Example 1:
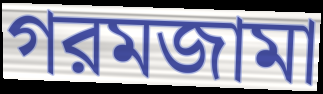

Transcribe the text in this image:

গরমজামা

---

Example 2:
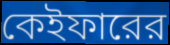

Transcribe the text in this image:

কেইফারের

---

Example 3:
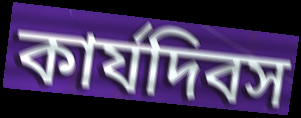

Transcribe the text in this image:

কার্যদিবস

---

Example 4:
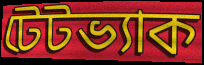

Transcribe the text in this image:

টেটভ্যাক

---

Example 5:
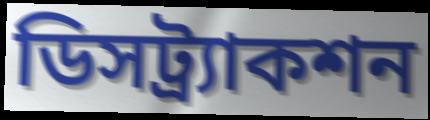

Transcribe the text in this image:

ডিসট্র্যাকশন